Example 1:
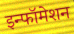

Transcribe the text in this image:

इन्फॉमेशन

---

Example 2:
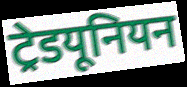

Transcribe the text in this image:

ट्रेडयूनियन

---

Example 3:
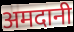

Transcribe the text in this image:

अमदानी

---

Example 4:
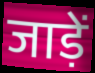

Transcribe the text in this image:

जाड़ें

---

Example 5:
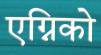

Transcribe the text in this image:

एग्निको